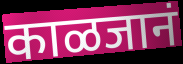
काळजानं